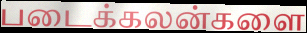
படைக்கலன்களை